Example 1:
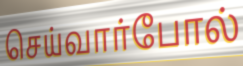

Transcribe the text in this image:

செய்வார்போல்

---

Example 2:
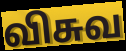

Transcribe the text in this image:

விசுவ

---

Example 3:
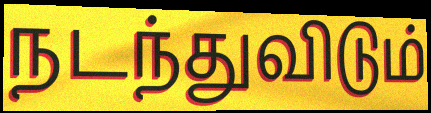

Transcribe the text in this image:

நடந்துவிடும்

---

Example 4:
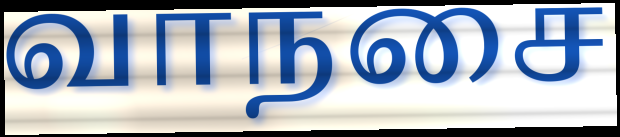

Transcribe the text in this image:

வாநசை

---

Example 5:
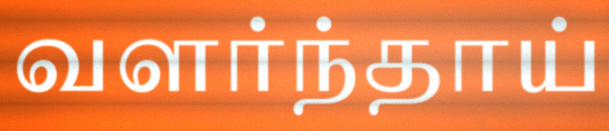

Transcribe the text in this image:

வளர்ந்தாய்